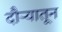
दौऱ्यातून